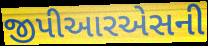
જીપીઆરએસની